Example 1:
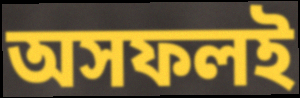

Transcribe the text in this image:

অসফলই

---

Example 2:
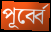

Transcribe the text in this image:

পূর্ব্বে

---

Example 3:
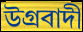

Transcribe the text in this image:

উগ্রবাদী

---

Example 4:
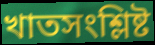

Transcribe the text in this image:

খাতসংশ্লিষ্ট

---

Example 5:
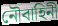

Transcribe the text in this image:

নৌবাহিনী